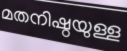
മതനിഷ്ഠയുള്ള